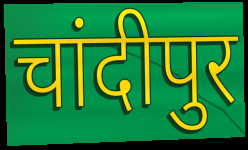
चांदीपुर